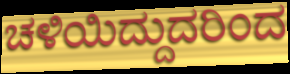
ಚಳಿಯಿದ್ದುದರಿಂದ